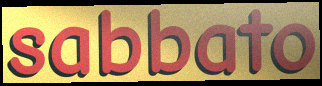
sabbato